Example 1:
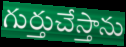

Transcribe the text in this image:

గుర్తుచేస్తాను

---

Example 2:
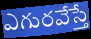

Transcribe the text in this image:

ఎగురవేస్తే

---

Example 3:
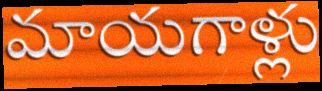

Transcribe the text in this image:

మాయగాళ్లు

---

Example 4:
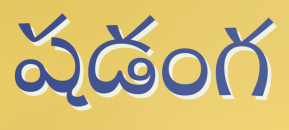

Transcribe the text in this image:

షడంగ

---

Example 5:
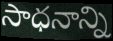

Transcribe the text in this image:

సాధనాన్ని